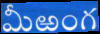
మీఱంగ